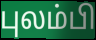
புலம்பி